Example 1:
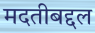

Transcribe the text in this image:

मदतीबद्दल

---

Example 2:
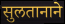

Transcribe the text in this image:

सुलतानाने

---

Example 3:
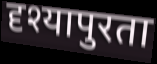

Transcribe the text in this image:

दृश्यापुरता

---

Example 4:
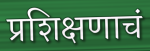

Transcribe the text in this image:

प्रशिक्षणाचं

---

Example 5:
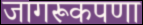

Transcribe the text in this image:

जागरूकपणा